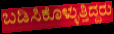
ಬಡಿಸಿಕೊಳ್ಳುತ್ತಿದ್ದರು